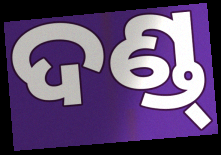
ଦଣ୍ଡ୍